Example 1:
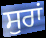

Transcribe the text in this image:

ਸੁਰਾਂ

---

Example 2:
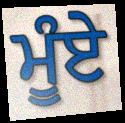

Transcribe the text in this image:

ਮੂੰਏ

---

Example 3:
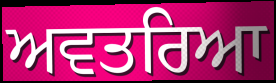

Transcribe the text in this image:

ਅਵਤਰਿਆ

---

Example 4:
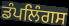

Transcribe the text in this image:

ਡੰਪਲਿੰਗਸ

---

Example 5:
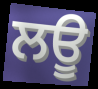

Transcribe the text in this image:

ਲਊ